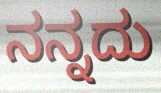
ನನ್ನದು